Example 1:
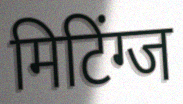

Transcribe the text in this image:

मिटिंग्ज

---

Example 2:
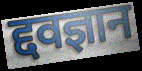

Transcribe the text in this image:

द्दवज्ञान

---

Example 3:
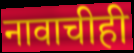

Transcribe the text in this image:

नावाचीही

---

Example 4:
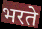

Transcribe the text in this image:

भरते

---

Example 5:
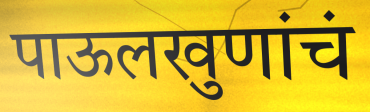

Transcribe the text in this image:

पाऊलखुणांचं